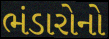
ભંડારોનો